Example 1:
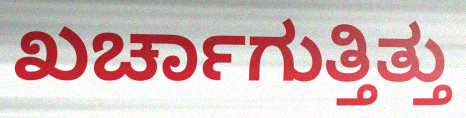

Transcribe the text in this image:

ಖರ್ಚಾಗುತ್ತಿತ್ತು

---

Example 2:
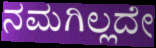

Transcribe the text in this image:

ನಮಗಿಲ್ಲದೇ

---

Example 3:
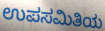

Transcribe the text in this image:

ಉಪಸಮಿತಿಯ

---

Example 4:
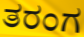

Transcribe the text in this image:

ತರಂಗ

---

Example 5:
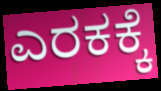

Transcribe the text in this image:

ಎರಕಕ್ಕೆ